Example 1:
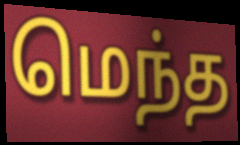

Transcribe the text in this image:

மெந்த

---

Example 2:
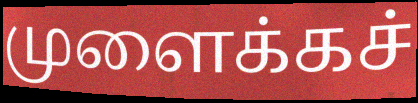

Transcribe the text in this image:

முளைக்கச்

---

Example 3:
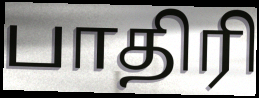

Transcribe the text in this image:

பாதிரி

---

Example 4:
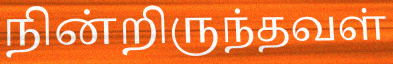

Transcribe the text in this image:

நின்றிருந்தவள்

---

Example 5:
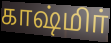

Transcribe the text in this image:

காஷ்மிர்